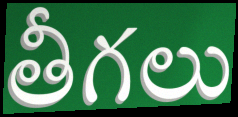
తీగలు